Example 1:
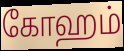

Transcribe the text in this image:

கோஹம்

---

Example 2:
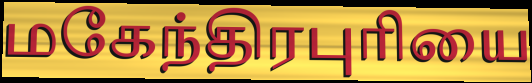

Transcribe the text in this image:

மகேந்திரபுரியை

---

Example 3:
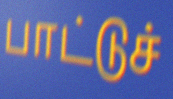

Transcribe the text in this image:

பாட்டுச்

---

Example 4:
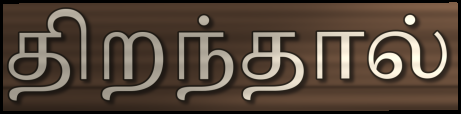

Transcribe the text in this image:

திறந்தால்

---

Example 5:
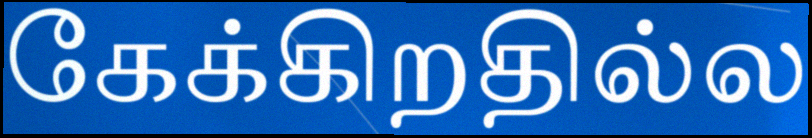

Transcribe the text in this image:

கேக்கிறதில்ல